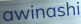
awinashi